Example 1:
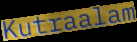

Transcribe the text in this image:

Kutraalam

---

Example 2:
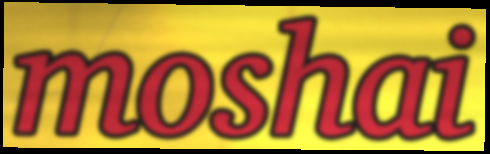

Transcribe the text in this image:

moshai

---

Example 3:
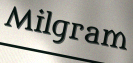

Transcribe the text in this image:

Milgram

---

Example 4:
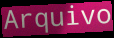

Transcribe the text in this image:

Arquivo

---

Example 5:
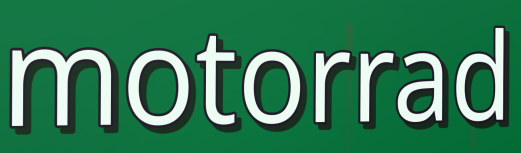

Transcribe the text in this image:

motorrad